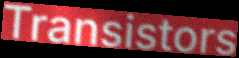
Transistors